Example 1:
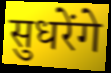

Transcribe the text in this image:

सुधरेंगे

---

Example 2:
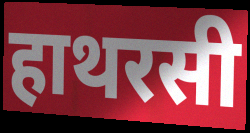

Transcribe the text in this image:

हाथरसी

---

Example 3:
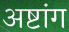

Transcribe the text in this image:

अष्टांग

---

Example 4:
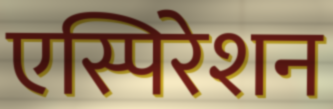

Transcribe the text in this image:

एस्पिरेशन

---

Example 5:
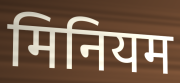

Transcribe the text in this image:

मिनियम